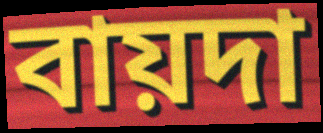
বায়দা